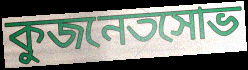
কুজনেতসোভ